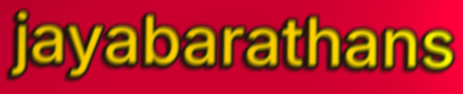
jayabarathans